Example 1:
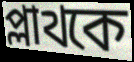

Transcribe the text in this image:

প্লাথকে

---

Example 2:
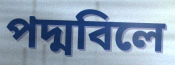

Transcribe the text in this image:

পদ্মবিলে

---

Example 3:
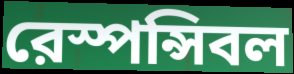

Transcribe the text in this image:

রেস্পন্সিবল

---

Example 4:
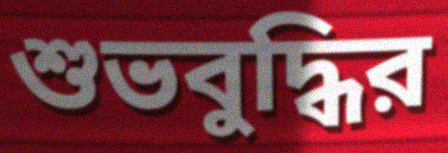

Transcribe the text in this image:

শুভবুদ্ধির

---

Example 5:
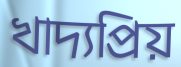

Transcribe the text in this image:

খাদ্যপ্রিয়